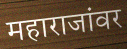
महाराजांवर